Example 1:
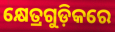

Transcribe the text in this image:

କ୍ଷେତ୍ରଗୁଡ଼ିକରେ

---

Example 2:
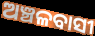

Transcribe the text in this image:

ଅଞ୍ଚଳବାସୀ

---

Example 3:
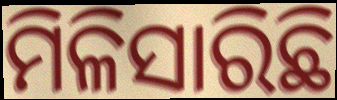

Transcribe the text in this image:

ମିଳିସାରିଛି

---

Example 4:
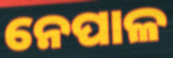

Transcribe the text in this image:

ନେପାଳ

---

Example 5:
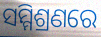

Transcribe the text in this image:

ସମ୍ମିଶ୍ରଣରେ